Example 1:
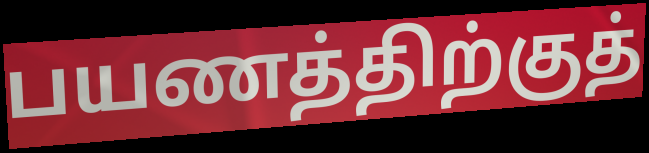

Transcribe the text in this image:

பயணத்திற்குத்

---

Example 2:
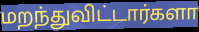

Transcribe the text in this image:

மறந்துவிட்டார்களா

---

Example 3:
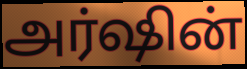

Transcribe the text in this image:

அர்ஷின்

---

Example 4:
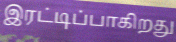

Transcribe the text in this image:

இரட்டிப்பாகிறது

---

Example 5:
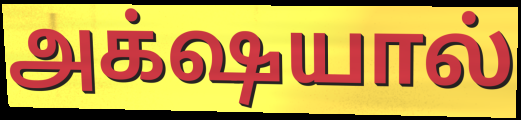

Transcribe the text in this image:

அக்‌ஷயால்